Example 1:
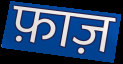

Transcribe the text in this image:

फ़ाज़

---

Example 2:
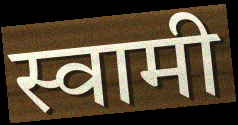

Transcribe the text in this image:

स्‍वामी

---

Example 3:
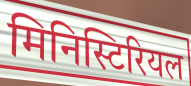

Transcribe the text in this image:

मिनिस्टिरियल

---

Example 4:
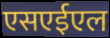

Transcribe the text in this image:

एसएईएल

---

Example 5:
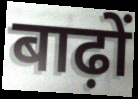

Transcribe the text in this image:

बाढ़ों